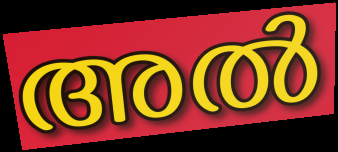
അൽ